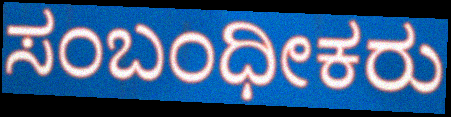
ಸಂಬಂಧೀಕರು